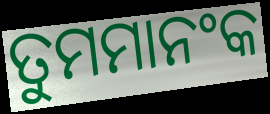
ତୁମମାନଂକ